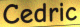
Cedric